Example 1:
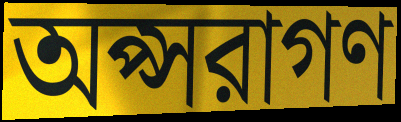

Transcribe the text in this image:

অপ্সরাগণ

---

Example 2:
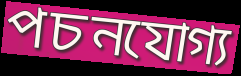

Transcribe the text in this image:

পচনযোগ্য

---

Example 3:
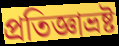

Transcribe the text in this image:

প্রতিজ্ঞাভ্রষ্ট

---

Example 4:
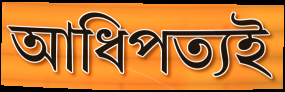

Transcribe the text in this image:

আধিপত্যই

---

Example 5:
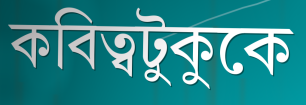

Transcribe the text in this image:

কবিত্বটুকুকে